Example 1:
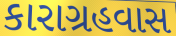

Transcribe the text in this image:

કારાગ્રહવાસ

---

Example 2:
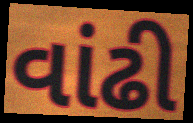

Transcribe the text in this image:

વાંઢી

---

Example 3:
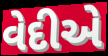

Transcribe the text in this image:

વેદીએ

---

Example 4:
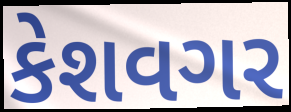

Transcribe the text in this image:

કેશવગર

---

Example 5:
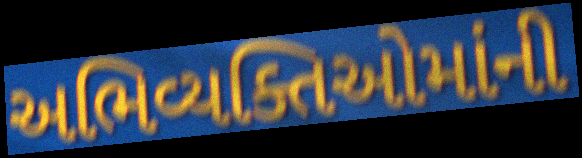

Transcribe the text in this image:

અભિવ્યક્તિઓમાંની